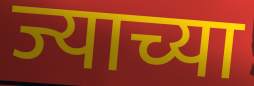
ज्याच्या